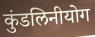
कुंडलिनीयोग